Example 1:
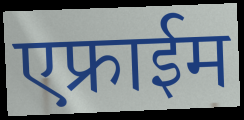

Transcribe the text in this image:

एफ्राईम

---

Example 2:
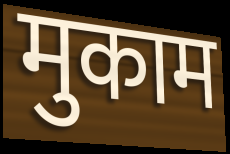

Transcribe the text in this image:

मुकाम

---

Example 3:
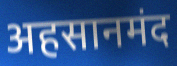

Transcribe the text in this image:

अहसानमंद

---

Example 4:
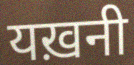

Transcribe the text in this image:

यख़नी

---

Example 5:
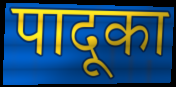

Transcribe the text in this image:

पादूका